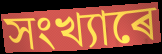
সংখ্যাৰে